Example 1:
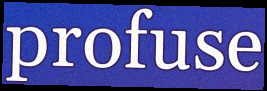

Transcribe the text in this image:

profuse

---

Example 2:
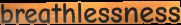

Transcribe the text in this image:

breathlessness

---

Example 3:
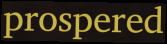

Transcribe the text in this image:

prospered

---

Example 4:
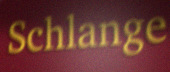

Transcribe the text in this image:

Schlange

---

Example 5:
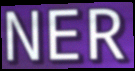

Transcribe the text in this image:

NER